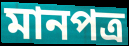
মানপত্র